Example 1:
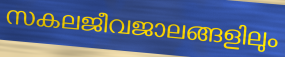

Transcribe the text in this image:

സകലജീവജാലങ്ങളിലും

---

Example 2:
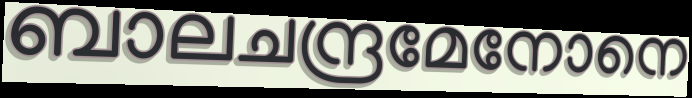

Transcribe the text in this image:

ബാലചന്ദ്രമേനോനെ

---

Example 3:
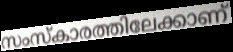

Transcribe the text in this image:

സംസ്കാരത്തിലേക്കാണ്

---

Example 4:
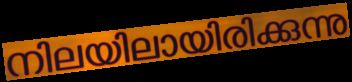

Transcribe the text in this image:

നിലയിലായിരിക്കുന്നു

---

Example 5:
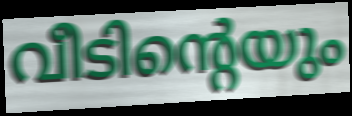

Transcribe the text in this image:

വീടിന്റെയും